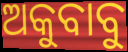
ଅକୁବାବୁ